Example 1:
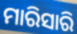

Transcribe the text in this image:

ମାରିସାରି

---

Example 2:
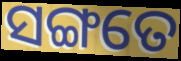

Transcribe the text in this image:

ସଙ୍ଗତେ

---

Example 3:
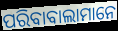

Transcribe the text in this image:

ପରିବାବାଲାମାନେ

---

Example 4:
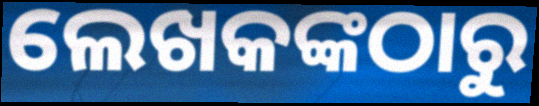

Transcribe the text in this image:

ଲେଖକଙ୍କଠାରୁ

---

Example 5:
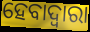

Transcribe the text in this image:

ହେବାଦ୍ୱାରା